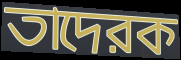
তাদেরক